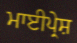
ਮਾਈਪ੍ਰੇਸ਼